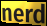
nerd